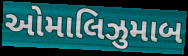
ઓમાલિઝુમાબ